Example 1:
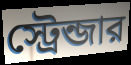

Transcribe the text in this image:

স্ট্রেন্জার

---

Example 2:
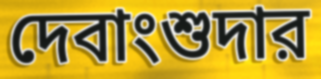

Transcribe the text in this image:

দেবাংশুদার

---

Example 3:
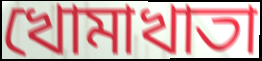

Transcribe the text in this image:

খোমাখাতা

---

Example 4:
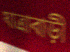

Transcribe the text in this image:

যাত্রাবাড়ী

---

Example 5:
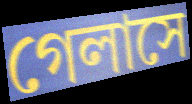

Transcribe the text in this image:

গেলাসে